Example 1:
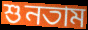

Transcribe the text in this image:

শুনতাম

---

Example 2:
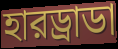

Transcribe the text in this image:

হারড্রাডা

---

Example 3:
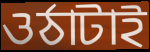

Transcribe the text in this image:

ওঠাটাই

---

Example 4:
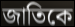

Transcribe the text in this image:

জাতিকে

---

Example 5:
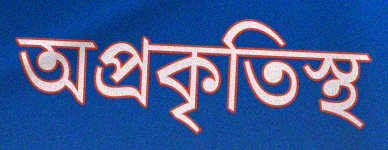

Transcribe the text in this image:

অপ্রকৃতিস্থ